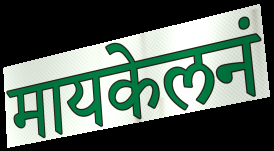
मायकेलनं